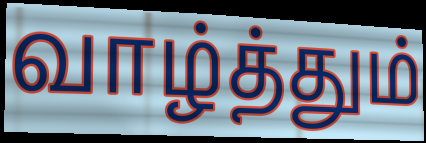
வாழ்த்தும்